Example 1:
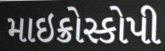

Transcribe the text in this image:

માઇક્રોસ્કોપી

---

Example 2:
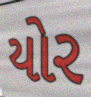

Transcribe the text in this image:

યોર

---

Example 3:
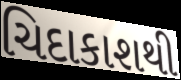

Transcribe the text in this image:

ચિદાકાશથી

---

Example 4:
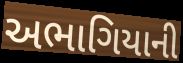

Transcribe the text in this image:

અભાગિયાની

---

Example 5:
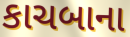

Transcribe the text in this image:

કાચબાના